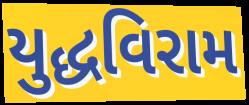
યુદ્ધવિરામ